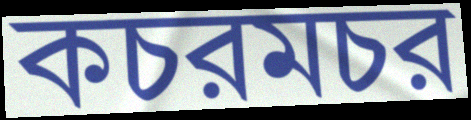
কচরমচর